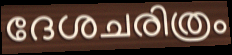
ദേശചരിത്രം